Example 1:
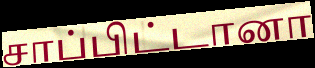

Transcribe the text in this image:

சாப்பிட்டானா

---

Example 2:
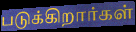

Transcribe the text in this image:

படுக்கிறார்கள்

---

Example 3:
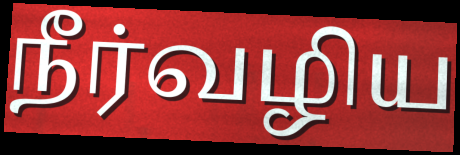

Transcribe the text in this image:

நீர்வழிய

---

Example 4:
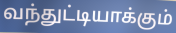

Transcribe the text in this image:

வந்துட்டியாக்கும்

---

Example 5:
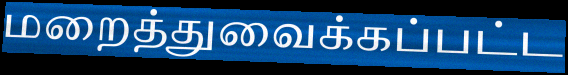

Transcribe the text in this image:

மறைத்துவைக்கப்பட்ட